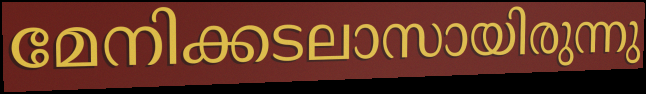
മേനിക്കടലാസായിരുന്നു